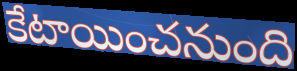
కేటాయించనుంది